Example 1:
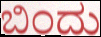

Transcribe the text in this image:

ಬಿಂದು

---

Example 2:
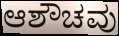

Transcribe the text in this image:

ಆಶೌಚವು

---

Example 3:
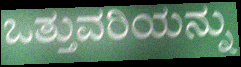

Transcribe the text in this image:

ಒತ್ತುವರಿಯನ್ನು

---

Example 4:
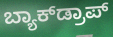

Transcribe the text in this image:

ಬ್ಯಾಕ್‌ಡ್ರಾಪ್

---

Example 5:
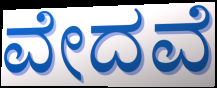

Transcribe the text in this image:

ವೇದವೆ